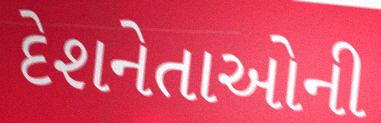
દેશનેતાઓની